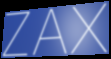
ZAX